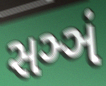
સઞ્ઞં